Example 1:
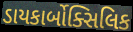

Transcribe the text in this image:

ડાયકાર્બોક્સિલિક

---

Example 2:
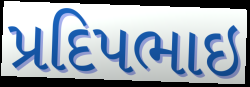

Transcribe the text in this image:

પ્રદિપભાઇ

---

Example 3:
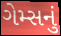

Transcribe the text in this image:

ગેમ્સનું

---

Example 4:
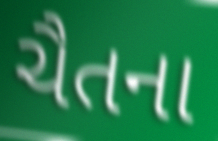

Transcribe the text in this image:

ચૈતના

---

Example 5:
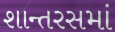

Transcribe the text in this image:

શાન્તરસમાં